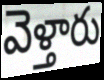
వెళ్తారు